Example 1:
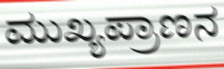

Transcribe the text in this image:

ಮುಖ್ಯಪ್ರಾಣನ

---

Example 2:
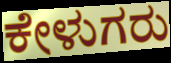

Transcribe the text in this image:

ಕೇಳುಗರು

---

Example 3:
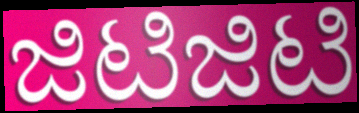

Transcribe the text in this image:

ಜಿಟಿಜಿಟಿ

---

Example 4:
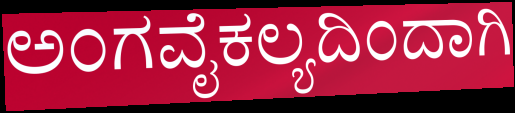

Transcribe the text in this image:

ಅಂಗವೈಕಲ್ಯದಿಂದಾಗಿ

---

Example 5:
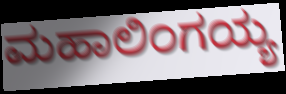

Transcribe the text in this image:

ಮಹಾಲಿಂಗಯ್ಯ